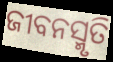
ଜୀବନସ୍ମୃତି